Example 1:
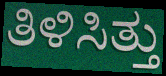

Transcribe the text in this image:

ತಿಳಿಸಿತ್ತು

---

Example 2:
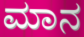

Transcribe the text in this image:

ಮಾನ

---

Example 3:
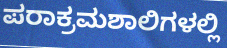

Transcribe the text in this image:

ಪರಾಕ್ರಮಶಾಲಿಗಳಲ್ಲಿ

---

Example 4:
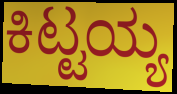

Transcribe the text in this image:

ಕಿಟ್ಟಯ್ಯ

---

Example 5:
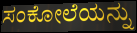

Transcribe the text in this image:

ಸಂಕೋಲೆಯನ್ನು